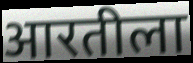
आरतीला